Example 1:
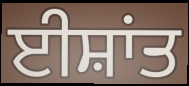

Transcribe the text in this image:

ਈਸ਼ਾਂਤ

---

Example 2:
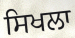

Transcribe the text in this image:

ਸਿਖਲਾ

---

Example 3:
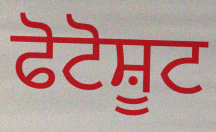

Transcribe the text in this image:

ਫੋਟੋਸ਼ੂਟ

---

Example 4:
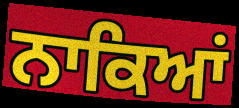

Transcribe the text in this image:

ਨਾਕਿਆਂ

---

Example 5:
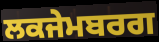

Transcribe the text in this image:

ਲਕਜੇਮਬਰਗ